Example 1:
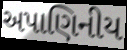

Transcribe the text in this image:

અપાણિનીય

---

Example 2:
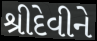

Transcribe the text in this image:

શ્રીદેવીને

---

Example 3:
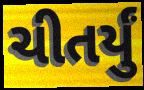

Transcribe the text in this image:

ચીતર્યું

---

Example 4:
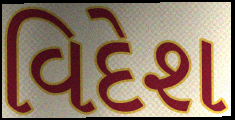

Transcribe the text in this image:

વિદેશ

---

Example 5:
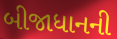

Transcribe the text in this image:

બીજાધાનની